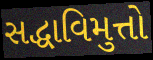
સદ્ધાવિમુત્તો